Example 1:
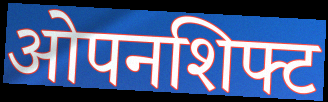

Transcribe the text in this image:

ओपनशिफ्ट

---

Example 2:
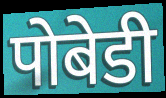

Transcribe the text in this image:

पोबेडी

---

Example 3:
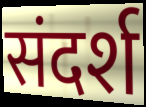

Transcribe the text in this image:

संदर्श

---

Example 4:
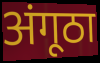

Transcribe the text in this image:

अंगूठा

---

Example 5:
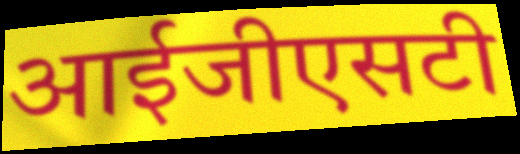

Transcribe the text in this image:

आईजीएसटी